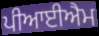
ਪੀਆਈਐਮ